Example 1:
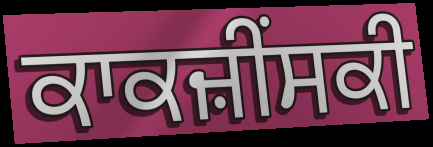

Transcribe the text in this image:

ਕਾਕਜ਼ੀੰਸਕੀ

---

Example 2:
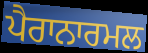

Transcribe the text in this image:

ਪੈਰਾਨਾਰਮਲ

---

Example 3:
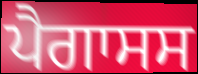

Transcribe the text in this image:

ਪੈਗਾਸਸ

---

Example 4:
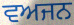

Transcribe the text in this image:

ਵਅਜਨ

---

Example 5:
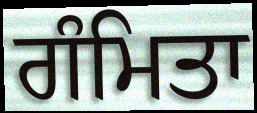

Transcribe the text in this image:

ਗੰਮਿਤਾ